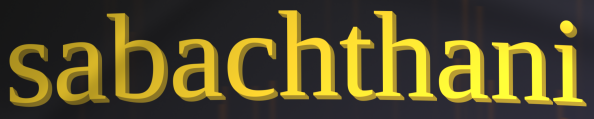
sabachthani